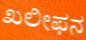
ಖಲೀಫನ